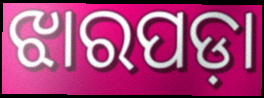
ଝାରପଡ଼ା